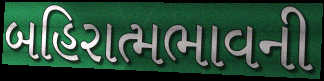
બહિરાત્મભાવની